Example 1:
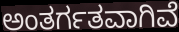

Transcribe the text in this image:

ಅಂತರ್ಗತವಾಗಿವೆ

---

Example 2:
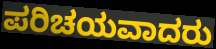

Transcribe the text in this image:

ಪರಿಚಯವಾದರು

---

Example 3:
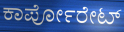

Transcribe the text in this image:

ಕಾರ್ಪೋರೇಟ್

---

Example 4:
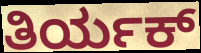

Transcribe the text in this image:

ತಿರ್ಯಕ್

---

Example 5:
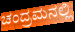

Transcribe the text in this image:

ಚಂದ್ರಮನಲ್ಲಿ